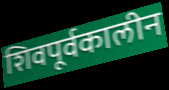
शिवपूर्वकालीन